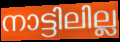
നാട്ടിലില്ല